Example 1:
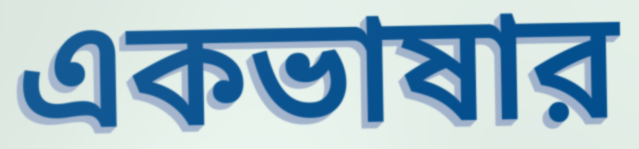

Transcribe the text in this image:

একভাষার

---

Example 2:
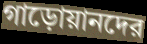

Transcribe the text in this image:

গাড়োয়ানদের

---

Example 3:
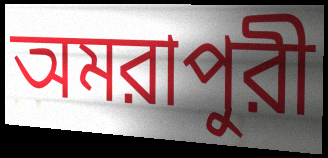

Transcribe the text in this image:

অমরাপুরী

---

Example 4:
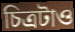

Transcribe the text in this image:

চিত্রটাও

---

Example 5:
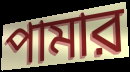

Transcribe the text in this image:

পামার